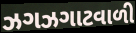
ઝગઝગાટવાળી